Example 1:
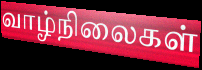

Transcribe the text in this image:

வாழ்நிலைகள்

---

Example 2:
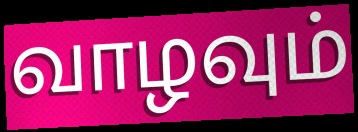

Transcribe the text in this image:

வாழவும்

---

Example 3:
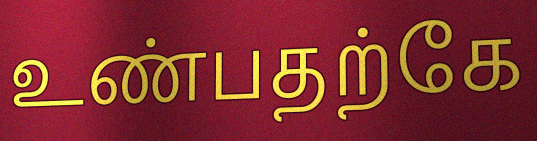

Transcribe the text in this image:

உண்பதற்கே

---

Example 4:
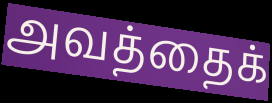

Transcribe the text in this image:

அவத்தைக்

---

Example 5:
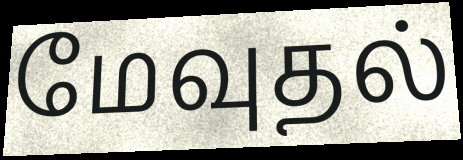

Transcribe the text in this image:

மேவுதல்